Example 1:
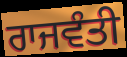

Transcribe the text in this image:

ਰਾਜਵੰਤੀ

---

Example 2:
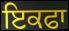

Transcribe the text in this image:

ਇਕਫਾ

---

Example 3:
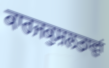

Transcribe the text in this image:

ਕਾਰਜਕੁਸ਼ਲਤਾਵਾਂ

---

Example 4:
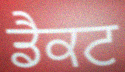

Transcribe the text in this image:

ਡੈਕਟ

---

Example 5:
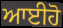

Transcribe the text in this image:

ਆਈਹੋ